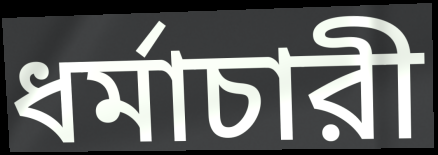
ধর্মাচারী